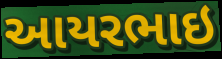
આયરભાઇ